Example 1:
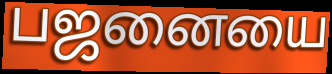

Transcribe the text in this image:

பஜனையை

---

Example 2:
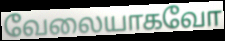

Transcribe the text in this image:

வேலையாகவோ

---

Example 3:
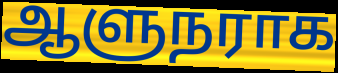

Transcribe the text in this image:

ஆளுநராக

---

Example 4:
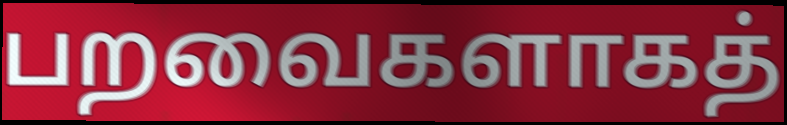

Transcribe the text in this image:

பறவைகளாகத்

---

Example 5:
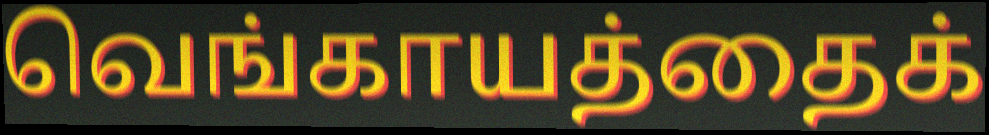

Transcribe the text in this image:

வெங்காயத்தைக்